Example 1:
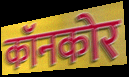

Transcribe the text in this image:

कॉनकोर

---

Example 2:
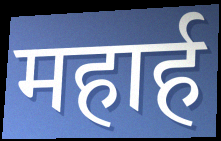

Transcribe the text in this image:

महार्ह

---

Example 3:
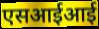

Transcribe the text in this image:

एसआईआई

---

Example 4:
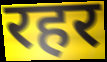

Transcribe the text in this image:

रहर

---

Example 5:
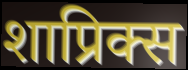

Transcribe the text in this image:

शाप्रिक्स